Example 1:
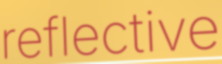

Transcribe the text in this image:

reflective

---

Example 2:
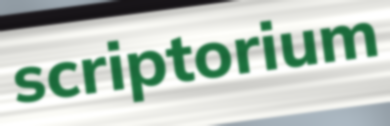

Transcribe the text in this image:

scriptorium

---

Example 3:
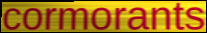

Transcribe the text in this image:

cormorants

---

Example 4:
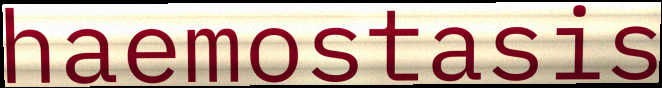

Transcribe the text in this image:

haemostasis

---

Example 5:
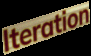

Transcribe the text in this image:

Iteration